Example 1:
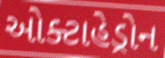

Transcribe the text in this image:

ઓક્ટાહેડ્રોન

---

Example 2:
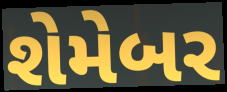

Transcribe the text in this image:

શેમેબર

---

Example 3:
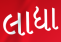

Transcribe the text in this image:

લાદ્યા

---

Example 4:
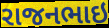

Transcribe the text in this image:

રાજનભાઇ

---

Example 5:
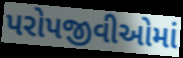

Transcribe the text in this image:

પરોપજીવીઓમાં